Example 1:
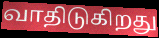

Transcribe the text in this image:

வாதிடுகிறது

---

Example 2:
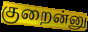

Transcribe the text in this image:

குறைன்னு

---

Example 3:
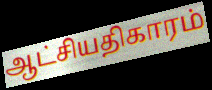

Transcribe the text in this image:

ஆட்சியதிகாரம்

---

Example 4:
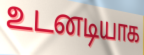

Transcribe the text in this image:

உடனடியாக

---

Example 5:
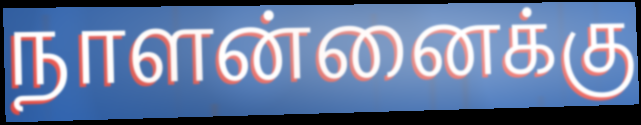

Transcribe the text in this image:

நாளன்னைக்கு